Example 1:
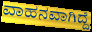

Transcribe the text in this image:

ವಾಹನವಾಗಿದ್ದೆ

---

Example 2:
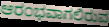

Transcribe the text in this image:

ಆರಂಭವಾಗಲಿರುವ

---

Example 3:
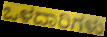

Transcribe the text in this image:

ಒಳದಾರಿಗಳು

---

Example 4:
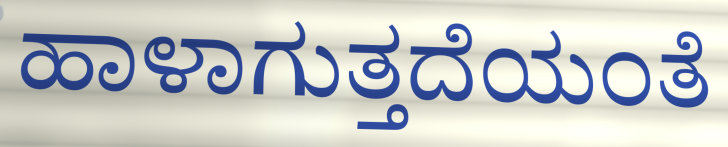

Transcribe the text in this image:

ಹಾಳಾಗುತ್ತದೆಯಂತೆ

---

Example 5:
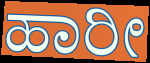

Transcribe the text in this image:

ಹಾರೀ